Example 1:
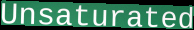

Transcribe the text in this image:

Unsaturated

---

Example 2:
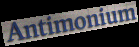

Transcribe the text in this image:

Antimonium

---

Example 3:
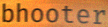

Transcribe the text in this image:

bhooter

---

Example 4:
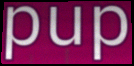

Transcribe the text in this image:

pup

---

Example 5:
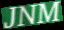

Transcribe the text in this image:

JNM